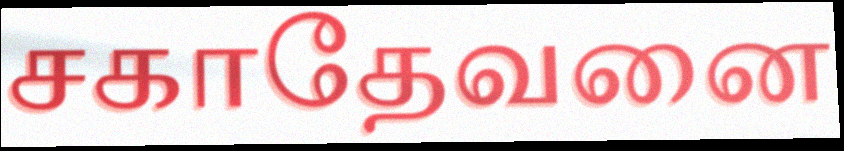
சகாதேவனை